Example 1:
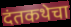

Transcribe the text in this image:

दंतकथेचा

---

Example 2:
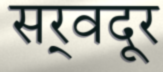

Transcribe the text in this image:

सर्वदूर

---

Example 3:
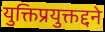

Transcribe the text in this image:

युक्तिप्रयुक्तद्दने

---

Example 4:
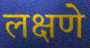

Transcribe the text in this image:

लक्षणे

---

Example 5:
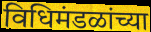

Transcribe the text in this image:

विधिमंडळांच्या